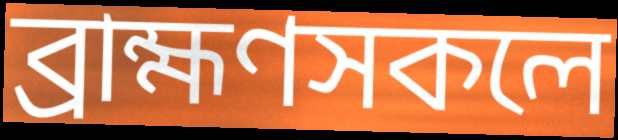
ব্ৰাহ্মণসকলে